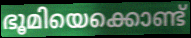
ഭൂമിയെക്കൊണ്ട്